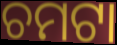
ଚମଟା